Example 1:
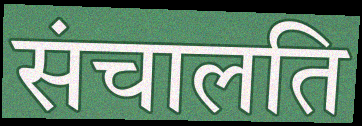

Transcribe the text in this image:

संचालति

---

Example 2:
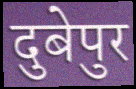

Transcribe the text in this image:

दुबेपुर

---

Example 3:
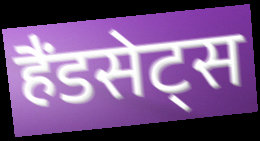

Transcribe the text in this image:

हैंडसेट्स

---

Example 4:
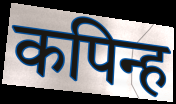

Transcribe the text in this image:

कपिन्ह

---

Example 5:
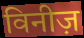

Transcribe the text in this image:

विनीज़